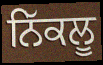
ਨਿੱਕਲੂ